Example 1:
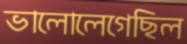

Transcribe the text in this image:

ভালোলেগেছিল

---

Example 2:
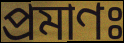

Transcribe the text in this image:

প্রমাণঃ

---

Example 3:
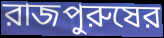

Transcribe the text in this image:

রাজপুরুষের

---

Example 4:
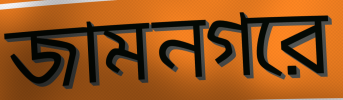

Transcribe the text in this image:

জামনগরে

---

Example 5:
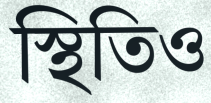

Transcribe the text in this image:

স্থিতিও